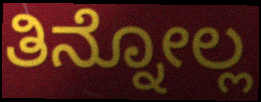
ತಿನ್ನೋಲ್ಲ